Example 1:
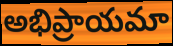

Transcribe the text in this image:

అభిప్రాయమా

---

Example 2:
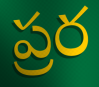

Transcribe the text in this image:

ప్రర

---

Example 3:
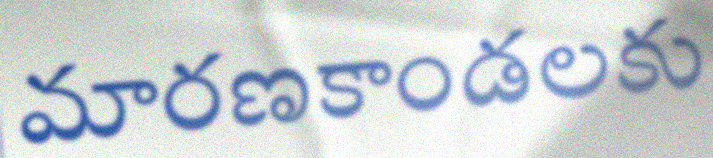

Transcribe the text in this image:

మారణకాండలకు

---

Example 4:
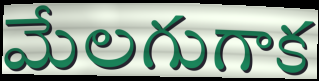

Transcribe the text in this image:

మేలగుగాక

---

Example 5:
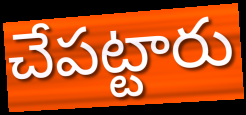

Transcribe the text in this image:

చేపట్టారు